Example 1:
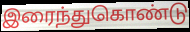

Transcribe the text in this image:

இரைந்துகொண்டு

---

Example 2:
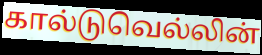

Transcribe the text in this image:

கால்டுவெல்லின்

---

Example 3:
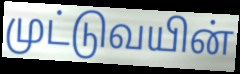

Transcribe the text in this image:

முட்டுவயின்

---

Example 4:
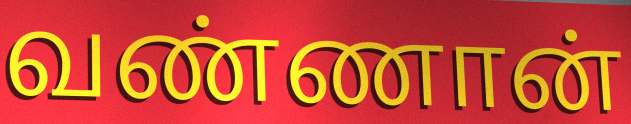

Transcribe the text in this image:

வண்ணான்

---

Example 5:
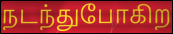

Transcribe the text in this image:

நடந்துபோகிற